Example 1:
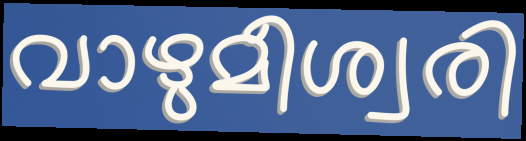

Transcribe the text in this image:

വാഴുമീശ്വരി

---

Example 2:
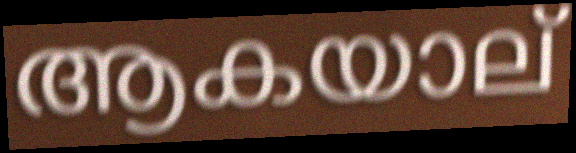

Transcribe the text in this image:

ആകയാല്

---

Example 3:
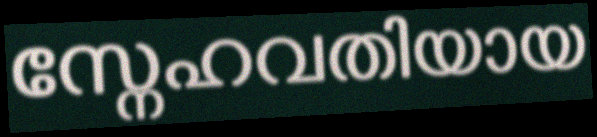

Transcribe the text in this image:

സ്നേഹവതിയായ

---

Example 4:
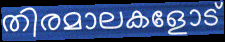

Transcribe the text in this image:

തിരമാലകളോട്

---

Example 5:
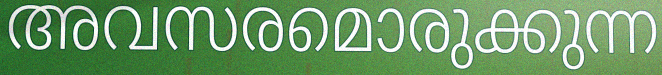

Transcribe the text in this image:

അവസരമൊരുക്കുന്ന